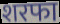
शरफा